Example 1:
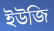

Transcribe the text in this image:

ইউজি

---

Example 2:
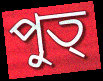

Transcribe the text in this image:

পুত্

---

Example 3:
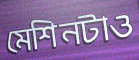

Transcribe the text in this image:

মেশিনটাও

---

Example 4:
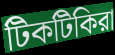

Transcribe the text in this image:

টিকটিকিরা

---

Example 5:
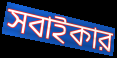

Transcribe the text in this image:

সবাইকার